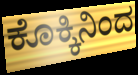
ಕೊಕ್ಕಿನಿಂದ